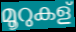
മൂറുകള്